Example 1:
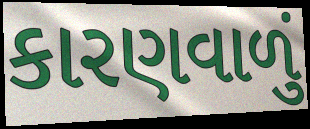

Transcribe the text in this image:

કારણવાળું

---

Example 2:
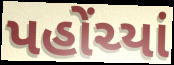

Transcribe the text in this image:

પહોંચ્યાં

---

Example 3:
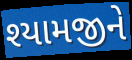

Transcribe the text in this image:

શ્યામજીને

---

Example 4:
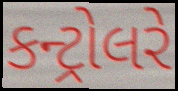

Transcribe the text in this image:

કન્ટ્રોલરે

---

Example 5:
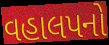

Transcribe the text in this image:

વહાલપનો